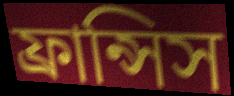
ফ্রান্সিস